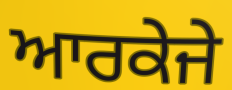
ਆਰਕੇਜੇ